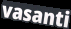
vasanti